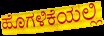
ಹೊಗಳಿಕೆಯಲ್ಲಿ